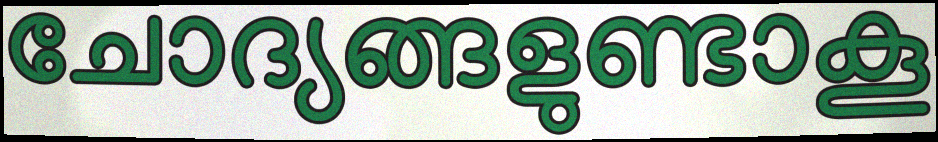
ചോദ്യങ്ങളുണ്ടാകൂ